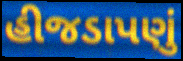
હીજડાપણું